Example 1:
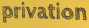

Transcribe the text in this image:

privation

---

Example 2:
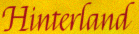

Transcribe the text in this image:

Hinterland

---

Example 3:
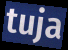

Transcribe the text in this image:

tuja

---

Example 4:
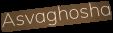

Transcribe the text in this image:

Asvaghosha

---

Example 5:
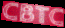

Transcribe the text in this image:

CBTC